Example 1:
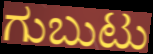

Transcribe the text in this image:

ಗುಬುಟು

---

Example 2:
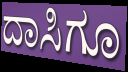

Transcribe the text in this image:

ದಾಸಿಗೂ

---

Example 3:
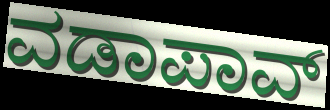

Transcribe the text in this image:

ವಡಾಪಾವ್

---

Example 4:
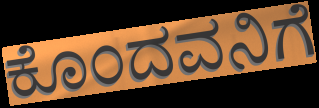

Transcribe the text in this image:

ಕೊಂದವನಿಗೆ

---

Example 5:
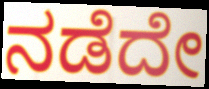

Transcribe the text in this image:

ನಡೆದೇ